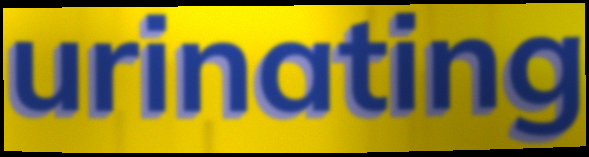
urinating